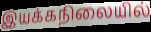
இயக்கநிலையில்